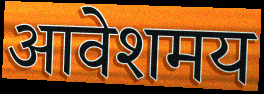
आवेशमय